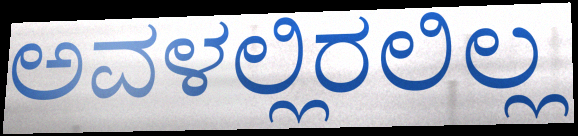
ಅವಳಲ್ಲಿರಲಿಲ್ಲ